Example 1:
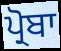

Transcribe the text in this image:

ਪ੍ਰੋਬਾ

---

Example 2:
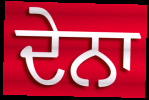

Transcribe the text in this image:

ਦੇਨਾ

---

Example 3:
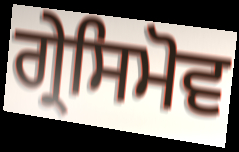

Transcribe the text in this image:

ਗ੍ਰੇਸਿਮੋਵ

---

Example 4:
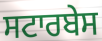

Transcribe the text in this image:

ਸਟਾਰਬੇਸ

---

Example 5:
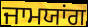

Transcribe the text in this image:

ਜਾਮਯਾਂਗ